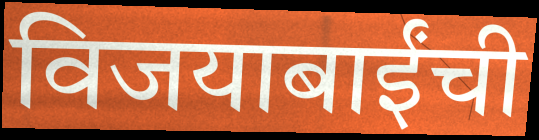
विजयाबाईंची